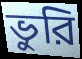
ভুরি